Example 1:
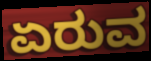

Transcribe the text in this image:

ಏರುವ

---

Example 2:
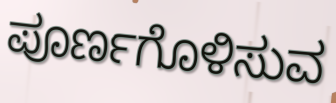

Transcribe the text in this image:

ಪೂರ್ಣಗೊಳಿಸುವ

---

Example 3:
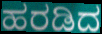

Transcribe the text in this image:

ಹರಡಿದ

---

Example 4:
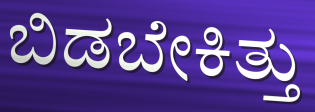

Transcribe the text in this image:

ಬಿಡಬೇಕಿತ್ತು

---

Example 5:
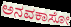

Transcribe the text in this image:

ಅನವಕಾಸೋ